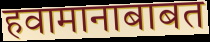
हवामानाबाबत